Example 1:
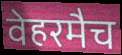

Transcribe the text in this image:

वेहरमैच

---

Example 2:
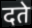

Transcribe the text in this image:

दते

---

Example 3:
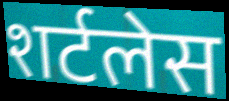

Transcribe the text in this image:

शर्टलेस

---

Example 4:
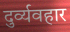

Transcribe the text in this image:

दुर्व्यवहार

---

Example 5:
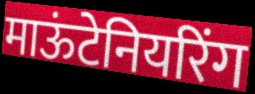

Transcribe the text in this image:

माऊंटेनियरिंग